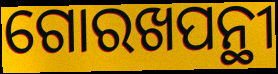
ଗୋରଖପନ୍ଥୀ